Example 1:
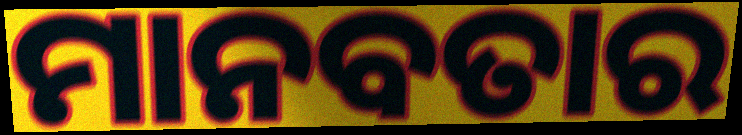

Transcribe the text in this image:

ମାନବତାର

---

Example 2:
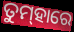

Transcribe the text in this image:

ତୁମ୍‌ହାରେ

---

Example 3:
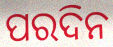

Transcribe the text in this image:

ପରଦିନ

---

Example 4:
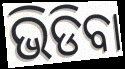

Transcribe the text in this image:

ଭିଡିବା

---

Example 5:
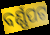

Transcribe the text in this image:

ବର୍ଣ୍ଣପଟ